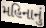
મહિનાનું